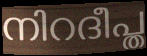
നിറദീപ്ത